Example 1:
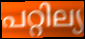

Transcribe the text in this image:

പറ്റില്യ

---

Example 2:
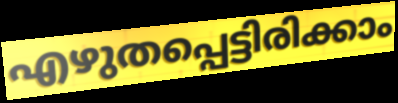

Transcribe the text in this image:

എഴുതപ്പെട്ടിരിക്കാം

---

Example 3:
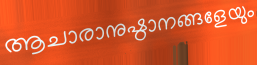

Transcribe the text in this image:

ആചാരാനുഷ്ഠാനങ്ങളേയും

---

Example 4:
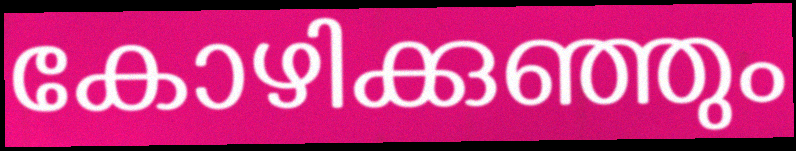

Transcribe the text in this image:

കോഴിക്കുഞ്ഞും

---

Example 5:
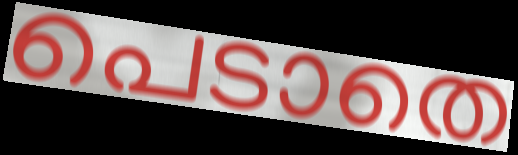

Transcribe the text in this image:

പെടാതെ